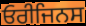
ਓਰੀਜਿਨਸ